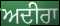
ਅਦੀਰਾ